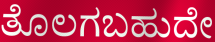
ತೊಲಗಬಹುದೇ